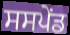
ਸਸਪੇੰਡ